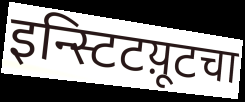
इन्स्टिटय़ूटचा